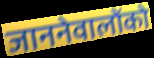
जाननेवालोंको